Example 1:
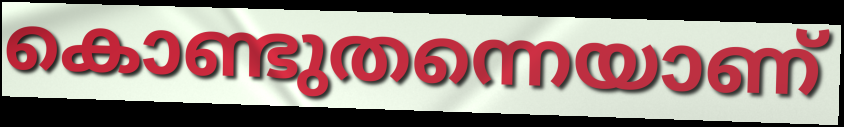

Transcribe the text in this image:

കൊണ്ടുതന്നെയാണ്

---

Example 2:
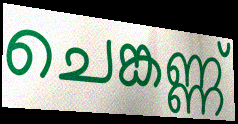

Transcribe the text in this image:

ചെങ്കണ്ണ്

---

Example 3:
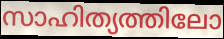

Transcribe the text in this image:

സാഹിത്യത്തിലോ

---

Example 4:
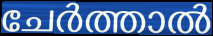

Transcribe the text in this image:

ചേർത്താൽ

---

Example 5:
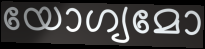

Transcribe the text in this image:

യോഗ്യമോ